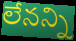
లేనన్ని